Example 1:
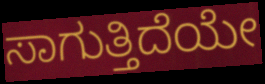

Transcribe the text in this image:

ಸಾಗುತ್ತಿದೆಯೇ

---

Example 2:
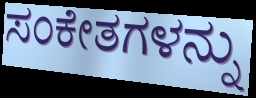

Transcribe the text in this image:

ಸಂಕೇತಗಳನ್ನು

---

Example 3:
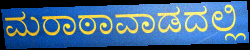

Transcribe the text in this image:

ಮರಾಠಾವಾಡದಲ್ಲಿ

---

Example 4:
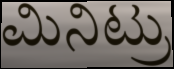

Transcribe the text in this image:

ಮಿನಿಟ್ರು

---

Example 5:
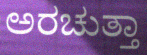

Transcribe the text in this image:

ಅರಚುತ್ತಾ